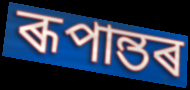
ৰূপান্তৰ